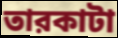
তারকাটা